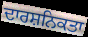
ਦਾਰਸ਼ਨਿਕਤਾ